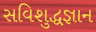
સવિશુદ્ધજ્ઞાન